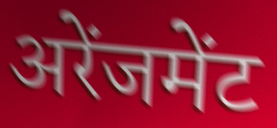
अरेंजमेंट